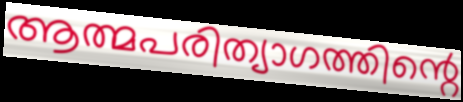
ആത്മപരിത്യാഗത്തിന്റെ